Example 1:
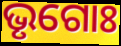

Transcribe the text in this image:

ଭୃଗୋଃ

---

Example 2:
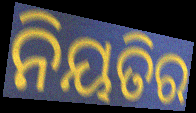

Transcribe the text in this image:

ନିୟତିର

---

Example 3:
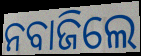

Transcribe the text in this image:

ନବାଜିଲେ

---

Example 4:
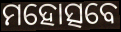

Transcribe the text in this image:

ମହୋତ୍ସବେ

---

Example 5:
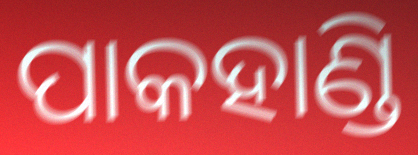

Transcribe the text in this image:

ପାକହାଣ୍ଡି